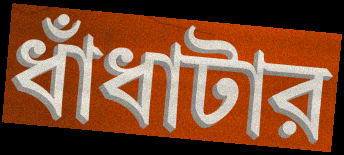
ধাঁধাটার